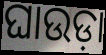
ଘାଉଡ଼ା